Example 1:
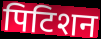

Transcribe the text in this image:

पिटिशन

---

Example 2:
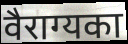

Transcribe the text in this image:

वैराग्यका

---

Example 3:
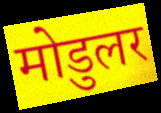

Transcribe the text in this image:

मोडुलर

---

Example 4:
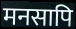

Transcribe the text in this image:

मनसापि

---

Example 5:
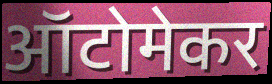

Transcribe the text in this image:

ऑटोमेकर